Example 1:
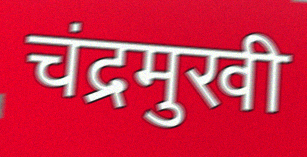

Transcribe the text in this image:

चंद्रमुखी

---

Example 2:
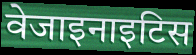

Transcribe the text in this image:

वेजाइनाइटिस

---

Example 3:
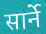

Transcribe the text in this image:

सार्ने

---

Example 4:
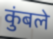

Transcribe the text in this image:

कुंबले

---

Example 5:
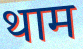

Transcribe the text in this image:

थाम